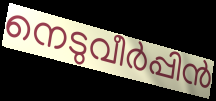
നെടുവീർപ്പിൻ